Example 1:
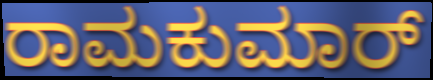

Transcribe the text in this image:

ರಾಮಕುಮಾರ್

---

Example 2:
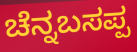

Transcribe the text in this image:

ಚೆನ್ನಬಸಪ್ಪ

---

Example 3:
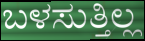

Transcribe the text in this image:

ಬಳಸುತ್ತಿಲ್ಲ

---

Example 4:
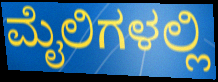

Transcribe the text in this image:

ಮೈಲಿಗಳಲ್ಲಿ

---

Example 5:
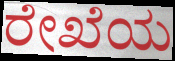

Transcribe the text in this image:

ರೇಖೆಯ